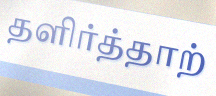
தளிர்த்தாற்